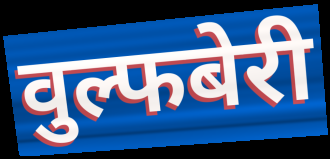
वुल्फबेरी